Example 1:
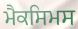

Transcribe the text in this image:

ਮੈਕਸਿਮਸ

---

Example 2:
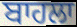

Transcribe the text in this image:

ਬਾਹਲਾ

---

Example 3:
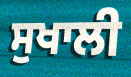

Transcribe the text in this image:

ਸੁਖਾਲੀ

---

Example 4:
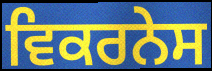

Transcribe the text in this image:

ਵਿਕਰਨੇਸ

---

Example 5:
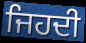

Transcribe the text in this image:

ਜਿਹਦੀ